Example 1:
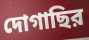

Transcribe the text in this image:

দোগাছির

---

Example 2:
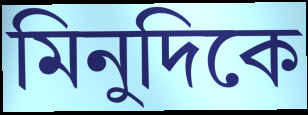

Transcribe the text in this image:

মিনুদিকে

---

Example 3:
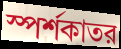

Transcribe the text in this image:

স্পর্শকাতর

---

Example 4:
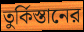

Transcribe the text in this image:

তুর্কিস্তানের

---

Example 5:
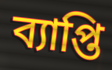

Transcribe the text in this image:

ব্যাপ্তি